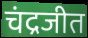
चंद्रजीत